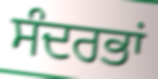
ਸੰਦਰਭਾਂ